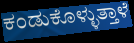
ಕಂಡುಕೊಳ್ಳುತ್ತಾಳೆ